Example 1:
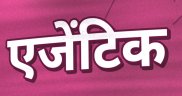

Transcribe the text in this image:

एजेंटिक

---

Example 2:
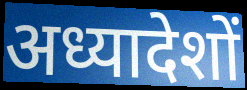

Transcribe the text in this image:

अध्यादेशों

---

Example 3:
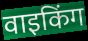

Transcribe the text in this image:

वाइकिंग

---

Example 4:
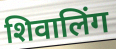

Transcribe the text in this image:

शिवालिंग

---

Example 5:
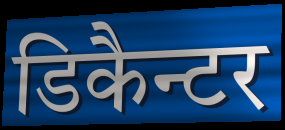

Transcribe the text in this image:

डिकैन्टर